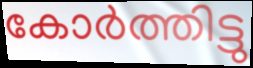
കോർത്തിട്ടു